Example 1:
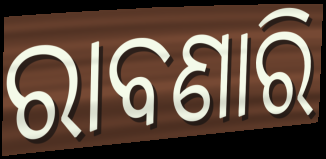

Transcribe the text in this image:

ରାବଣାରି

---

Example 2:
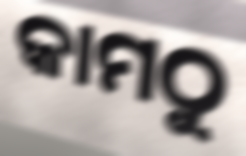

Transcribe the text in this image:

କାମଠୁ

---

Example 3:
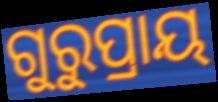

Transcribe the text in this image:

ଗୁରୁପ୍ରାୟ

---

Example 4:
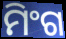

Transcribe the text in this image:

ମିଂଗ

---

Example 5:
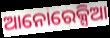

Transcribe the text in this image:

ଆନୋରେକ୍ସିଆ